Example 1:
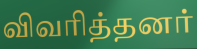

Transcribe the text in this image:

விவரித்தனர்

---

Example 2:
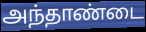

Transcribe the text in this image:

அந்தாண்டை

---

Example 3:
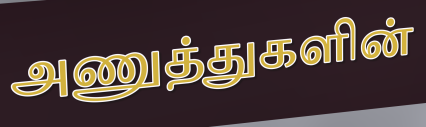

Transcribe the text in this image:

அணுத்துகளின்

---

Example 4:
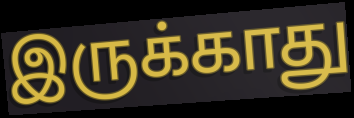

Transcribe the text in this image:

இருக்காது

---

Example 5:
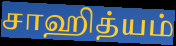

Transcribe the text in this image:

சாஹித்யம்